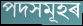
পদসমূহৰ